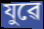
যুৱে